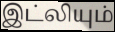
இட்லியும்